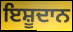
ਇਸ਼ੂਦਾਨ